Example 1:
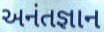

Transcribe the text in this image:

અનંતજ્ઞાન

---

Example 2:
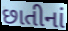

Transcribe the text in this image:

છાતીનાં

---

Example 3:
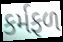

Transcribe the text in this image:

કર્મફળ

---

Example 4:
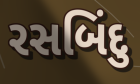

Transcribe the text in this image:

રસબિંદુ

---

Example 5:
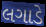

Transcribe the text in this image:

લગાડે